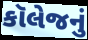
કૉલેજનું